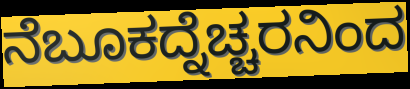
ನೆಬೂಕದ್ನೆಚ್ಚರನಿಂದ